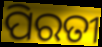
ପିରତୀ